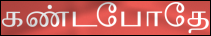
கண்டபோதே